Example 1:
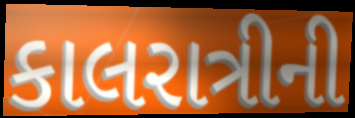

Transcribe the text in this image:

કાલરાત્રીની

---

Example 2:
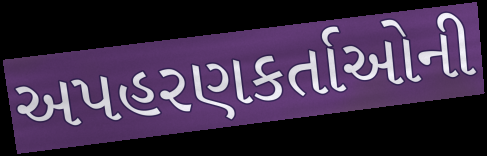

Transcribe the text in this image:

અપહરણકર્તાઓની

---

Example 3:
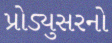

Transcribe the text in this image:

પ્રોડ્યુસરનો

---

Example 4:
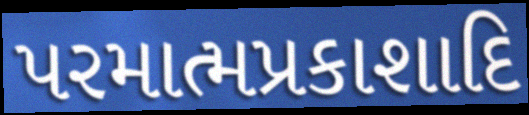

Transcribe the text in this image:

પરમાત્મપ્રકાશાદિ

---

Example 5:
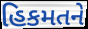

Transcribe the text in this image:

હિકમતને